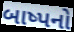
બાષ્પનો